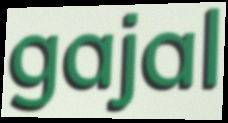
gajal